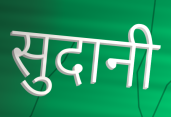
सुदानी